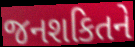
જનશકિતને